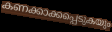
കണക്കാക്കപ്പെടുകയും